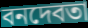
বনদেবতা